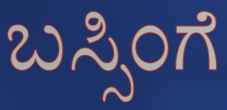
ಬಸ್ಸಿಂಗೆ